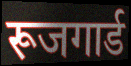
रूजगार्ड